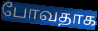
போவதாக